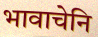
भावाचेनि